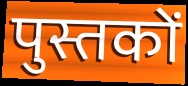
पुस्‍तकों